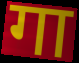
गा